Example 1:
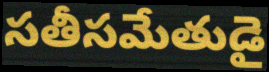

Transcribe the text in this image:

సతీసమేతుడై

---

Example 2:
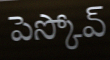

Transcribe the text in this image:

పెస్కోవ్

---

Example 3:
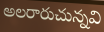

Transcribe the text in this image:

అలరారుచున్నవి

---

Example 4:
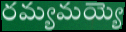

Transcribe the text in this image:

రమ్యమయ్యె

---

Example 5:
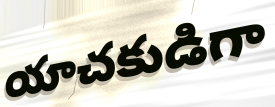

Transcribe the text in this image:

యాచకుడిగా